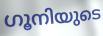
ഗൂനിയുടെ